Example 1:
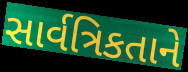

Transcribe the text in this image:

સાર્વત્રિકતાને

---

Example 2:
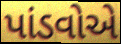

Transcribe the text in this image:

પાંડવોએ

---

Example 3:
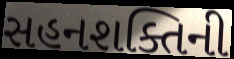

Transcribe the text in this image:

સહનશક્તિની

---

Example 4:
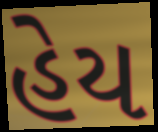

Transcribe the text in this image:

હેય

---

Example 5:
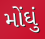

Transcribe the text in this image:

મોંઘું